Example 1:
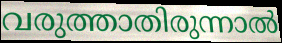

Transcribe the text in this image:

വരുത്താതിരുന്നാൽ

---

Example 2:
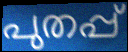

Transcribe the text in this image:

പുതപ്പ്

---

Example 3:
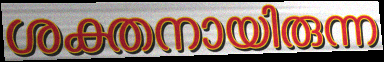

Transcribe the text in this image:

ശക്തനായിരുന്ന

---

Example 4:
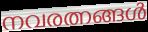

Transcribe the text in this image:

നവരത്നങ്ങൾ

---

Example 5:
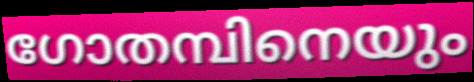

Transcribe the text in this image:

ഗോതമ്പിനെയും